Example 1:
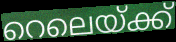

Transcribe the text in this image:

റെലെയ്ക്ക്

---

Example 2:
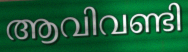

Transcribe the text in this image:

ആവിവണ്ടി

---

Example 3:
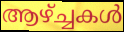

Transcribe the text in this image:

ആഴ്ച്ചകൾ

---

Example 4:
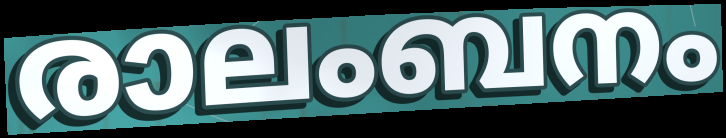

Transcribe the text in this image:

രാലംബനം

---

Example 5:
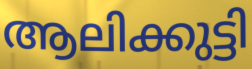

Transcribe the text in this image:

ആലിക്കുട്ടി